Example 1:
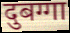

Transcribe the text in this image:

दुबग्गा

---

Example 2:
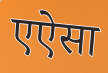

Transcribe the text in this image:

एऐसा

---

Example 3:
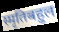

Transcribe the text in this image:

स्मृतिबहुल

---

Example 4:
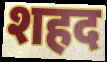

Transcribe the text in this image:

शहद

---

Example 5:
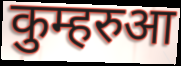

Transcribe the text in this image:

कुम्हरुआ